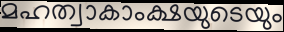
മഹത്വാകാംക്ഷയുടെയും